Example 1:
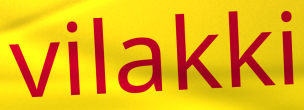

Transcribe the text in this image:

vilakki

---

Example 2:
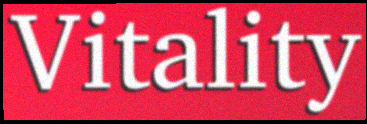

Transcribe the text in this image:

Vitality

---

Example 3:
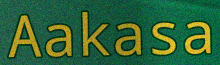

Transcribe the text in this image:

Aakasa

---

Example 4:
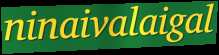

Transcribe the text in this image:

ninaivalaigal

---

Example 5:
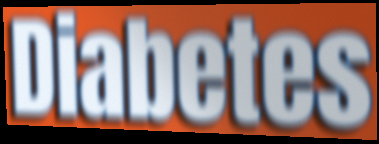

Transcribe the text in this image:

Diabetes